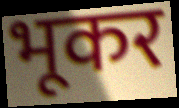
भूकर